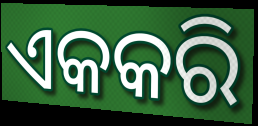
ଏକକରି